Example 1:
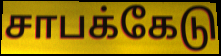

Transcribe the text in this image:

சாபக்கேடு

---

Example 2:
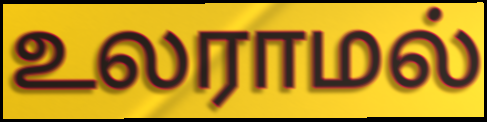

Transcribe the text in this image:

உலராமல்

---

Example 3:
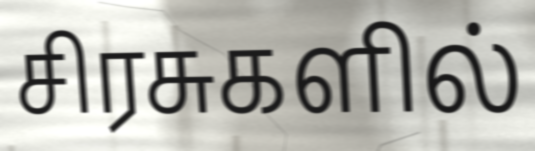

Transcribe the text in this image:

சிரசுகளில்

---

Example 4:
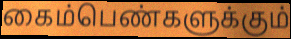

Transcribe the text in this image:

கைம்பெண்களுக்கும்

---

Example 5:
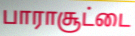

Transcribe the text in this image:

பாராசூட்டை